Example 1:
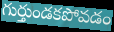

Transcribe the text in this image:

గుర్తుండకపోవడం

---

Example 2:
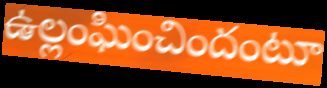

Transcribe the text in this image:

ఉల్లంఘించిందంటూ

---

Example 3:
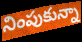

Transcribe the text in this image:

నింపుకున్నా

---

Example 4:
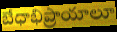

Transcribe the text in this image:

బేధాభిప్రాయాలూ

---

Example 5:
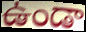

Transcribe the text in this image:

ఉండా